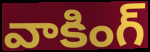
వాకింగ్